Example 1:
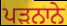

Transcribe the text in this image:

ਪੜਨਾਨੇ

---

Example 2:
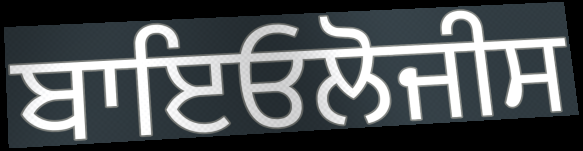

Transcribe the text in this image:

ਬਾਇਓਲੋਜੀਸ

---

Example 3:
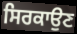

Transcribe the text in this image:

ਸਿਰਕਾਉਣ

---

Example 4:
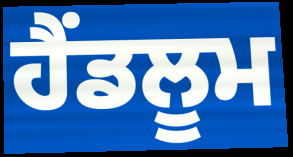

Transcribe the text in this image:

ਹੈਂਡਲੂਮ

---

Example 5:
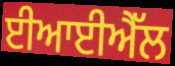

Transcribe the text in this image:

ਈਆਈਐੱਲ